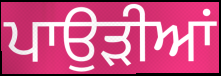
ਪਾਉੜੀਆਂ